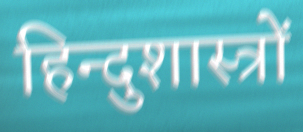
हिन्दुशास्त्रों